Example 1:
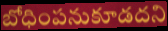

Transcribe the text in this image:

బోధింపనుకూడదని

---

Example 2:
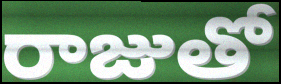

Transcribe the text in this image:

రాజుతో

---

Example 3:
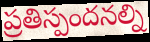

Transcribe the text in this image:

ప్రతిస్పందనల్ని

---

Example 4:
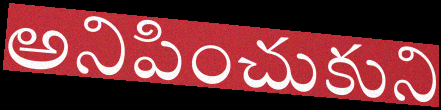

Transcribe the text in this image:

అనిపించుకుని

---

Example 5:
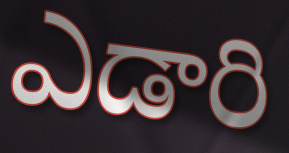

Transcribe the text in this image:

ఎడారి